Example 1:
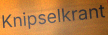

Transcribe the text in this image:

Knipselkrant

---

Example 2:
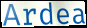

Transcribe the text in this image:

Ardea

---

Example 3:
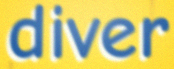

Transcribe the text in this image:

diver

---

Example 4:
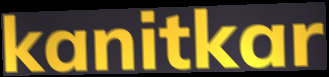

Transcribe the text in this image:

kanitkar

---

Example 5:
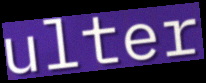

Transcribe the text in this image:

ulter